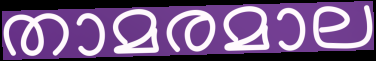
താമരമാല